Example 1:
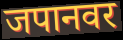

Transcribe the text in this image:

जपानवर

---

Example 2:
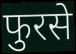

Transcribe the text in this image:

फुरसे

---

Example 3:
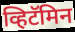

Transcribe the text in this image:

व्हिटॅमिन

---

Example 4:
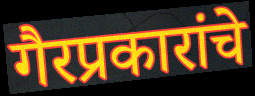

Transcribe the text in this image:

गैरप्रकारांचे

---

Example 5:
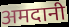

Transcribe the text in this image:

अमदानी